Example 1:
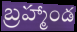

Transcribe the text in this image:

బ్రహ్మాండ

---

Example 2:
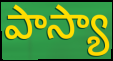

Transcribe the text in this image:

పాస్యా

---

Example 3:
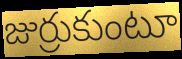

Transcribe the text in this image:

జుర్రుకుంటూ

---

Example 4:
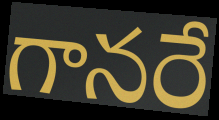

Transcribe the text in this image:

గానరే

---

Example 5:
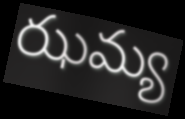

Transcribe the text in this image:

ఝమ్య